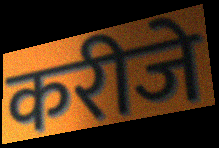
करीजे